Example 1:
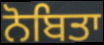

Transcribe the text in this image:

ਨੋਬਿਤਾ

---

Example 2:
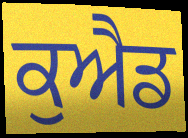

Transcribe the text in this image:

ਕੁਐਡ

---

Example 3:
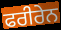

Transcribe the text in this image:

ਫਰੀਰੇਨ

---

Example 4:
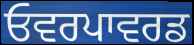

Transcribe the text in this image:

ਓਵਰਪਾਵਰਡ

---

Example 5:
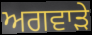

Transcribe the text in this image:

ਅਗਵਾੜੇ